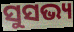
ସୁସଭ୍ୟ